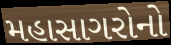
મહાસાગરોનો